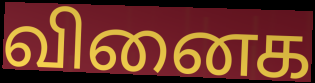
வினைக